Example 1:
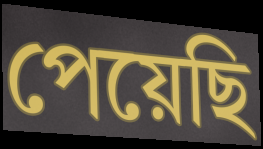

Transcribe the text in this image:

পেয়েছি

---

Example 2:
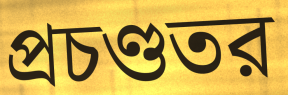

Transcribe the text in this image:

প্রচণ্ডতর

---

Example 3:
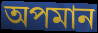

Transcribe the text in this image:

অপমান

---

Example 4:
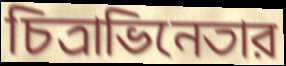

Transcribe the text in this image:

চিত্রাভিনেতার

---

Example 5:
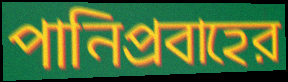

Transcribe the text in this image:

পানিপ্রবাহের